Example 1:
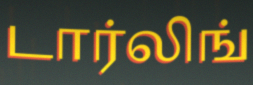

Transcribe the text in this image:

டார்லிங்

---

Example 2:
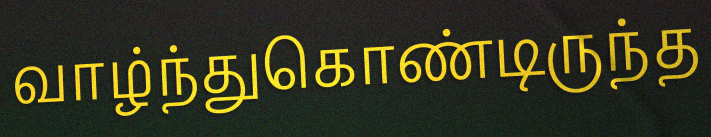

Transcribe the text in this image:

வாழ்ந்துகொண்டிருந்த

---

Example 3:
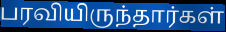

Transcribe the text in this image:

பரவியிருந்தார்கள்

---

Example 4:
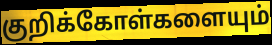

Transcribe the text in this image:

குறிக்கோள்களையும்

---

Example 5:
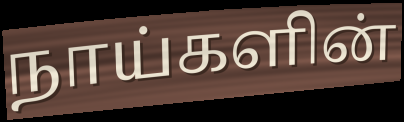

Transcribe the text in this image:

நாய்களின்